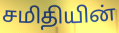
சமிதியின்